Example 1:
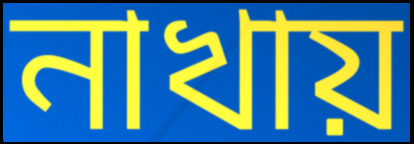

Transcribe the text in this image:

নাখায়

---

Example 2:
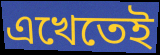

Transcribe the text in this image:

এখেতেই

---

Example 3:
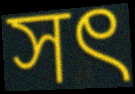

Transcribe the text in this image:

সৎ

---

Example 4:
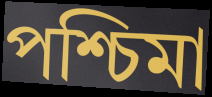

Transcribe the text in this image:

পশ্চিমা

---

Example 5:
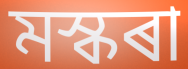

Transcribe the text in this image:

মস্কৰা